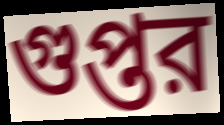
গুপ্তর